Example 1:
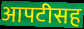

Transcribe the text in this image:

आपटीसह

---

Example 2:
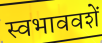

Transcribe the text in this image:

स्वभाववशें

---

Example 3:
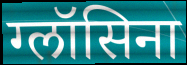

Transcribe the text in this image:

ग्लॉसिना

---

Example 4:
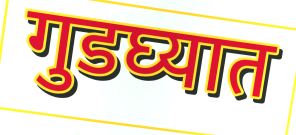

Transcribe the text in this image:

गुडघ्यात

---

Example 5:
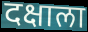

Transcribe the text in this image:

दक्षाला